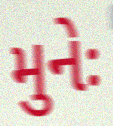
મુનેઃ